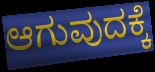
ಆಗುವುದಕ್ಕೆ